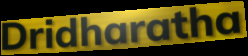
Dridharatha